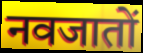
नवजातों